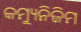
କମ୍ୟୁନିଜିମ